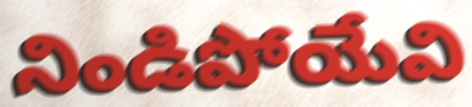
నిండిపోయేవి